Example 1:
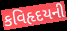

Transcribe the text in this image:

કવિહૃદયની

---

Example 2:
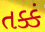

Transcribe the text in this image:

તક્કં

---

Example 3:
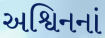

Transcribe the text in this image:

અશ્વિનનાં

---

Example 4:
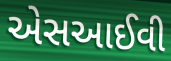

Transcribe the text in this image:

એસઆઈવી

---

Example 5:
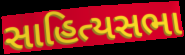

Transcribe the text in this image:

સાહિત્યસભા